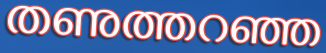
തണുത്തറഞ്ഞ